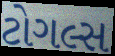
ટોગલ્સ